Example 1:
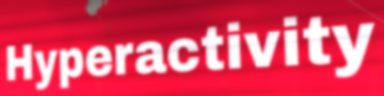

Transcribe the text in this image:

Hyperactivity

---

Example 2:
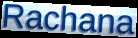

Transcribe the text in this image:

Rachana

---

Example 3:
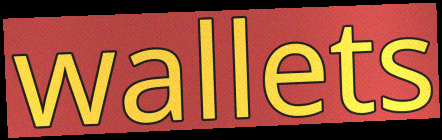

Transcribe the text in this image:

wallets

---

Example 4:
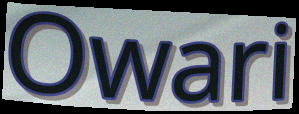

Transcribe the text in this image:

Owari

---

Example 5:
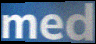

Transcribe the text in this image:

med